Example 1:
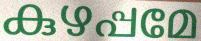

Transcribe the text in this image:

കുഴപ്പമേ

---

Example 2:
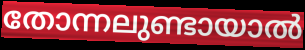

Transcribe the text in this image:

തോന്നലുണ്ടായാൽ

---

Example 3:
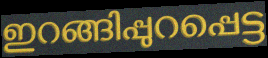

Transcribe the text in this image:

ഇറങ്ങിപ്പുറപ്പെട്ട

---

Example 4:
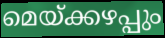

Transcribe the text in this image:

മെയ്ക്കഴപ്പും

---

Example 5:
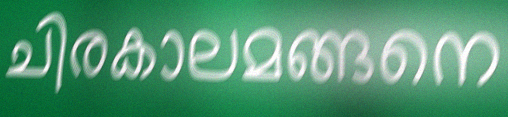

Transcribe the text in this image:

ചിരകാലമങ്ങനെ